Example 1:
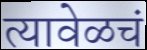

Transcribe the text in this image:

त्यावेळचं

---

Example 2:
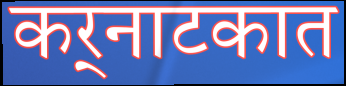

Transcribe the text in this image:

कर्नाटकात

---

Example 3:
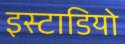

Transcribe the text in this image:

इस्टाडियो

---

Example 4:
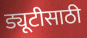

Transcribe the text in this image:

ड्यूटीसाठी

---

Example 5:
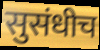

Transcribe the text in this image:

सुसंधीच